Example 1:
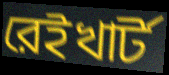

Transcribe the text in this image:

রেইখার্ট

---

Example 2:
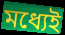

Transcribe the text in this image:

মধ্যেই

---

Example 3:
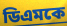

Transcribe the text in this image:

ডিএমকে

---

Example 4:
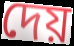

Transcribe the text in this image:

দেয়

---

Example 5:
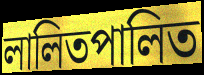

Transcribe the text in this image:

লালিতপালিত